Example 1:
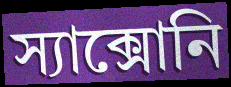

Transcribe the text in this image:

স্যাক্সোনি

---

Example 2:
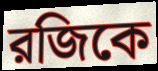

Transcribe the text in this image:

রজিকে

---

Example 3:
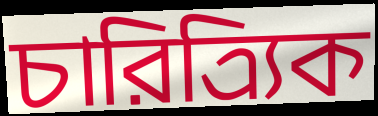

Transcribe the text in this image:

চারিত্র্যিক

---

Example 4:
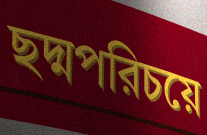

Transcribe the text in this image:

ছদ্মপরিচয়ে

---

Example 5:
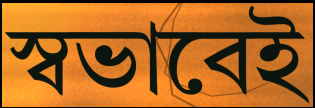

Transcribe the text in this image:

স্বভাবেই